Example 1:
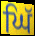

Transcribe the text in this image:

ਘਿੱ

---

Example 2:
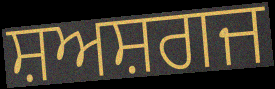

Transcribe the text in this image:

ਸ਼ਅਸ਼ਗਜ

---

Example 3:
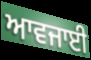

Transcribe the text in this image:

ਆਵਜਾਈ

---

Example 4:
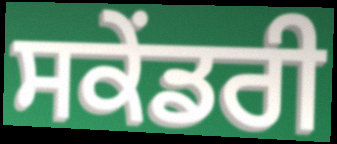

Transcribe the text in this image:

ਸਕੇਂਡਰੀ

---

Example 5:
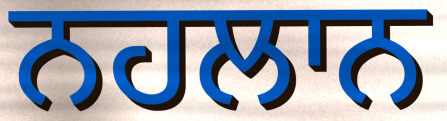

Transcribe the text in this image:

ਨਹਲਾਨ